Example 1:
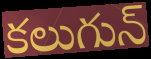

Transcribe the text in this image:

కలుగున్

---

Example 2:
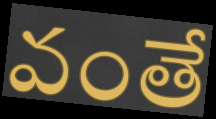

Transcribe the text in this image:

వంతే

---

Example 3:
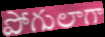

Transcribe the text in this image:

పోగులాగా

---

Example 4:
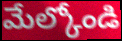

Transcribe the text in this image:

మేల్కోండి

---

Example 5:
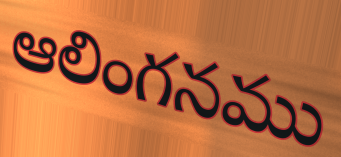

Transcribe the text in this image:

ఆలింగనము